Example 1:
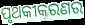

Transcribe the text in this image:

ପୃଥକୀକରଣର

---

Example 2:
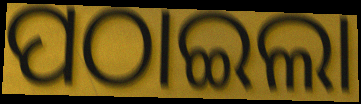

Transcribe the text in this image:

ପଠାଇଲା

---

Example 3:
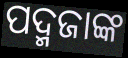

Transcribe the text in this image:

ପଦ୍ମଜାଙ୍କ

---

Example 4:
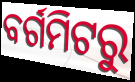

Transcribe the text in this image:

ବର୍ଗମିଟରୁ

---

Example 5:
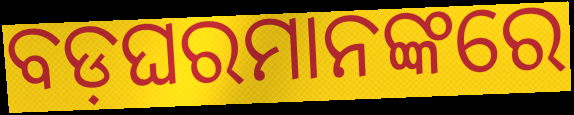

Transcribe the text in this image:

ବଡ଼ଘରମାନଙ୍କରେ